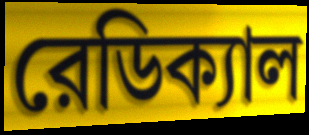
রেডিক্যাল